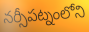
నర్సీపట్నంలోని